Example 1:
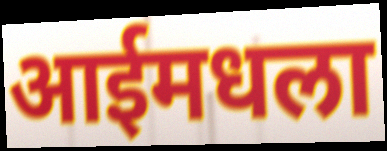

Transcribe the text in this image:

आईमधला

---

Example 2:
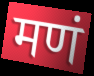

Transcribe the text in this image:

मणं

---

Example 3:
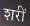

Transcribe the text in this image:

शरीं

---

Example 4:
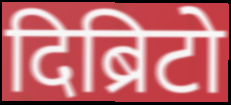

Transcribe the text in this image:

दिब्रिटो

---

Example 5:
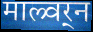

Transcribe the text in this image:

माल्वर्न